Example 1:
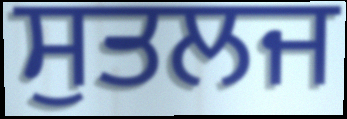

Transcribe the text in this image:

ਸੁਤਲਜ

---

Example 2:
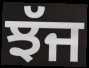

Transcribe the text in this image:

ਝੱਜ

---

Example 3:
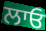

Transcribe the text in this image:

ਲਾਓ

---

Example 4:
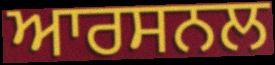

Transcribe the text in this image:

ਆਰਸਨਲ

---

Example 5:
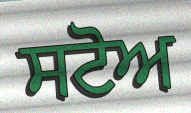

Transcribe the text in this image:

ਸਟੋਅ